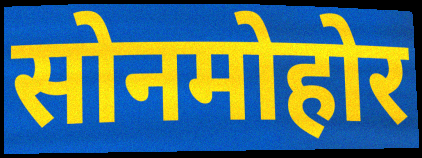
सोनमोहोर